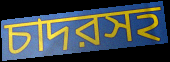
চাদরসহ